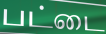
பட்டை